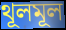
থূলমূল